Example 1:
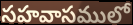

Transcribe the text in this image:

సహవాసములో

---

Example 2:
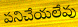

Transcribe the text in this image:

పనిచేయలేవు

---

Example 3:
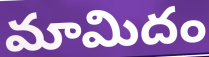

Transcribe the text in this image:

మామిదం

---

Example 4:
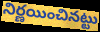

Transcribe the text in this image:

నిర్ణయించినట్టు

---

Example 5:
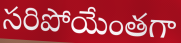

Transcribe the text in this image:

సరిపోయేంతగా